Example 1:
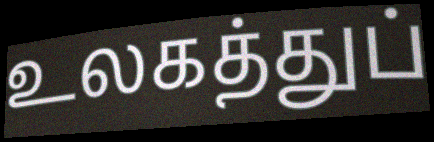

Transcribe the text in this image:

உலகத்துப்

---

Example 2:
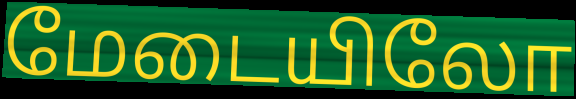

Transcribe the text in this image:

மேடையிலோ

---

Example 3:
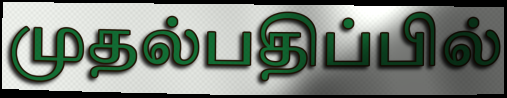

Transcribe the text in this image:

முதல்பதிப்பில்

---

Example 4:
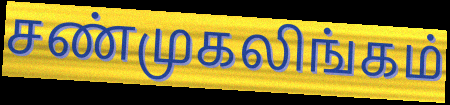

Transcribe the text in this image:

சண்முகலிங்கம்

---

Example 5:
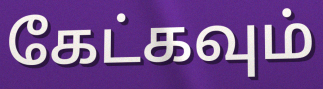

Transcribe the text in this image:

கேட்கவும்